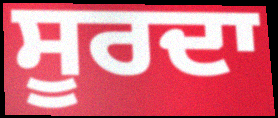
ਸੂਰਦਾ